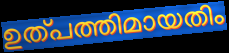
ഉത്പത്തിമായതിം